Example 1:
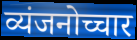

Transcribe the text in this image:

व्यंजनोच्चार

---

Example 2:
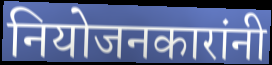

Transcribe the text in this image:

नियोजनकारांनी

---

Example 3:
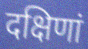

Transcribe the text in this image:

दक्षिणां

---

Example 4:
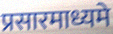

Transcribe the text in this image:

प्रसारमाध्यमे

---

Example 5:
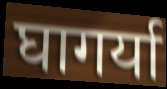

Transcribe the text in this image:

घागर्या